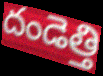
దండెత్తి